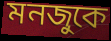
মনজুকে